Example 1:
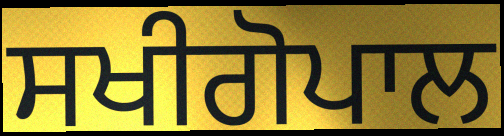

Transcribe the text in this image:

ਸਖੀਗੋਪਾਲ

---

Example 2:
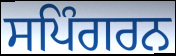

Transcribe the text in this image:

ਸਪਿੰਗਰਨ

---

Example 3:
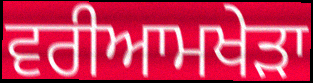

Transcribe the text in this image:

ਵਰੀਆਮਖੇੜਾ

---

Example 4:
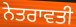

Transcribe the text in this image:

ਨੇਤਰਾਵਤੀ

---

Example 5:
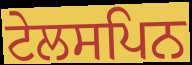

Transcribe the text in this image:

ਟੇਲਸਪਿਨ